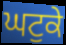
ਘਟੁਕੇ